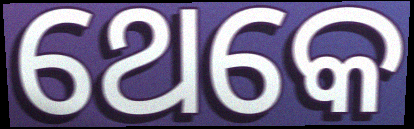
ଥେକେ